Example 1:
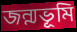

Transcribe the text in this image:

জন্মভূমি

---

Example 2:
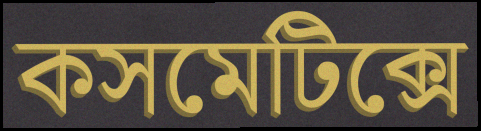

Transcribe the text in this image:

কসমেটিক্সে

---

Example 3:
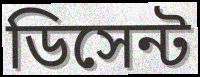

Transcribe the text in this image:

ডিসেন্ট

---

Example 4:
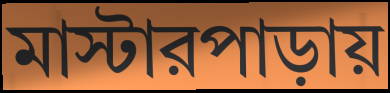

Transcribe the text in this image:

মাস্টারপাড়ায়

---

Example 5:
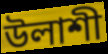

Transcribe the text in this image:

উলাশী